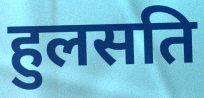
हुलसति